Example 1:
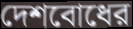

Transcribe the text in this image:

দেশবোধের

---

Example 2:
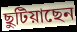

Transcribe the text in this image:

ছুটিয়াছেন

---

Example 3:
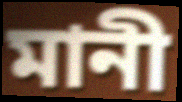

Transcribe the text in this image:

মানী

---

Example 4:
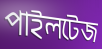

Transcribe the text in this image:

পাইলটেজ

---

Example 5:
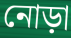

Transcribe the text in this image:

নোড়া